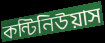
কন্টিনিউয়াস